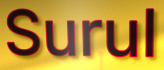
Surul